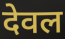
देवल